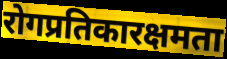
रोगप्रतिकारक्षमता